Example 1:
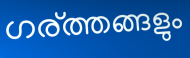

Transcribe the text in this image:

ഗര്ത്തങ്ങളും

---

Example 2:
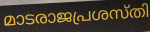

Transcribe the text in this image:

മാടരാജപ്രശസ്തി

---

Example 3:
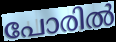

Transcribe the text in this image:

പോരിൽ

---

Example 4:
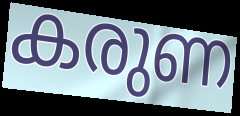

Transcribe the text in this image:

കരുണ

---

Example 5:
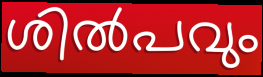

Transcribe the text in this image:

ശിൽപവും